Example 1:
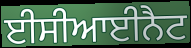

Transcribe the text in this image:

ਈਸੀਆਈਨੈਟ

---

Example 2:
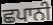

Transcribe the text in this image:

ਛਪਾਨੀ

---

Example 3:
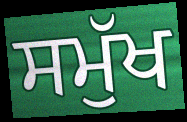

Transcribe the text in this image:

ਸਮੁੱਖ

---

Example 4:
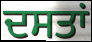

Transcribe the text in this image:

ਦਸਤਾਂ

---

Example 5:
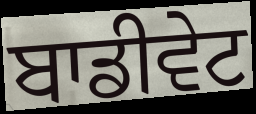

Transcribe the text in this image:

ਬਾਡੀਵੇਟ